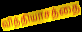
வித்தியாசத்தை